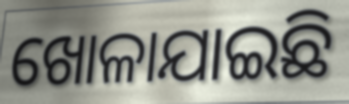
ଖୋଳାଯାଇଛି